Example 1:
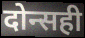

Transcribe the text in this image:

दोन्सही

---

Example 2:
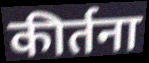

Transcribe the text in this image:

कीर्तना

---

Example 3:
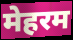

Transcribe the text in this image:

मेहरम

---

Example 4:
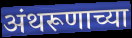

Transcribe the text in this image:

अंथरूणाच्या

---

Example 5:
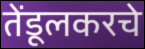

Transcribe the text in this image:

तेंडूलकरचे